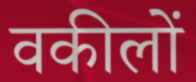
वकीलों